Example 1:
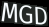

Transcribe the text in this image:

MGD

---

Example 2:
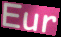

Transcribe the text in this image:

Eur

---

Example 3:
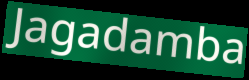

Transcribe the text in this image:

Jagadamba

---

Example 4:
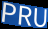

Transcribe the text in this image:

PRU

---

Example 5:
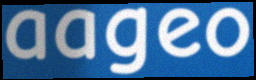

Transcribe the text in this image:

aageo